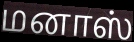
மனாஸ்